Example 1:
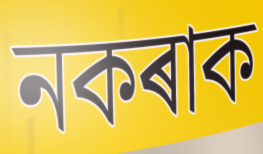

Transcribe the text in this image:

নকৰাক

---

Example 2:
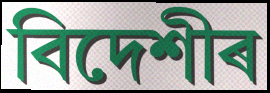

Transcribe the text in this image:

বিদেশীৰ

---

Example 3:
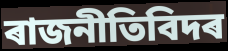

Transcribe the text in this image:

ৰাজনীতিবিদৰ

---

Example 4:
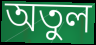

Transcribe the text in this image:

অতুল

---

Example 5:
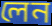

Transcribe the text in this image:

লেন